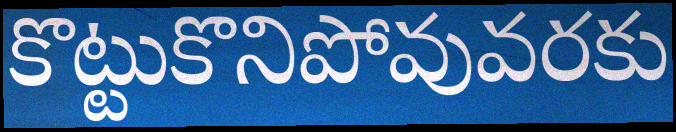
కొట్టుకొనిపోవువరకు